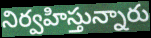
నిర్వహిస్తున్నారు